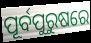
ପୂର୍ବପୁରୁଷରେ